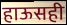
हाऊसही